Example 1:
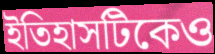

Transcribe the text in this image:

ইতিহাসটিকেও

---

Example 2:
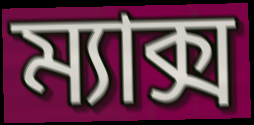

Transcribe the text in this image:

ম্যাক্স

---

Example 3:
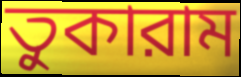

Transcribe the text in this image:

তুকারাম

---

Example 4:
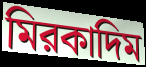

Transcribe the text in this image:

মিরকাদিম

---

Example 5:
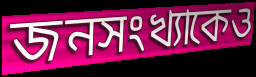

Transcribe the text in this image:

জনসংখ্যাকেও